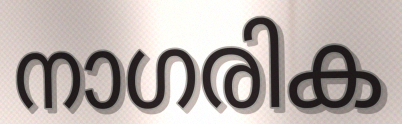
നാഗരിക